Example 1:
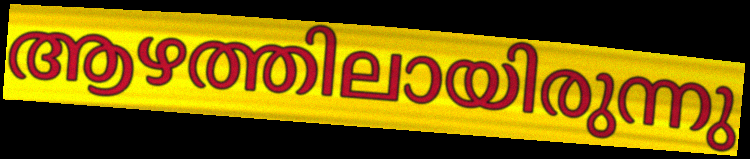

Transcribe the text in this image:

ആഴത്തിലായിരുന്നു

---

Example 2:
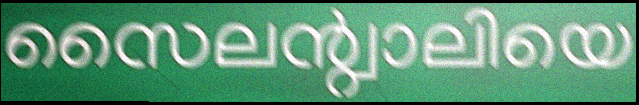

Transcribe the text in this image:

സൈലന്റ്വാലിയെ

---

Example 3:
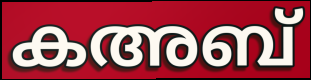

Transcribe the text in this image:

കഅബ്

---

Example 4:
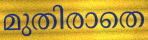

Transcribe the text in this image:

മുതിരാതെ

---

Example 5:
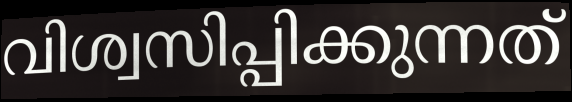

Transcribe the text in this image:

വിശ്വസിപ്പിക്കുന്നത്